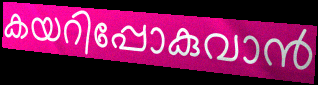
കയറിപ്പോകുവാൻ